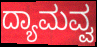
ದ್ಯಾಮವ್ವ